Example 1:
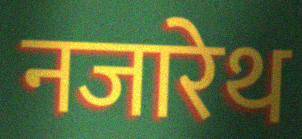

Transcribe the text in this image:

नजारेथ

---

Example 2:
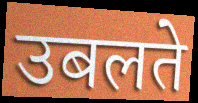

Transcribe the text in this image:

उबलते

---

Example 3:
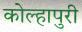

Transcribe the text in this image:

कोल्हापुरी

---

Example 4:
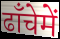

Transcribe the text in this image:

ढाँचेमें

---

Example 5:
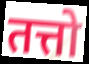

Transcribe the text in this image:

तत्तो